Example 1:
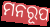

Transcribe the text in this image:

ମନରୂପ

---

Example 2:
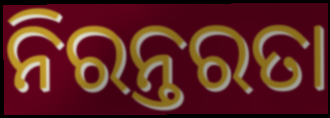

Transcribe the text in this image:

ନିରନ୍ତରତା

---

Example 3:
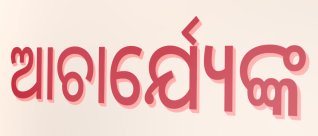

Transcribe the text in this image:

ଆଚାର୍ଯ୍ୟେଙ୍କ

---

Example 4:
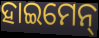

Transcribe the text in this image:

ହାଇମେନ୍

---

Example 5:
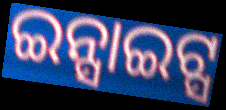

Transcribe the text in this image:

ଇନ୍ସାଇଟ୍ସ